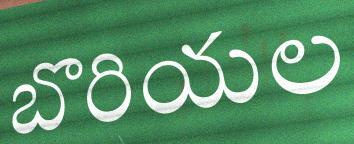
బొరియల